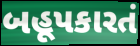
બહૂપકારતં